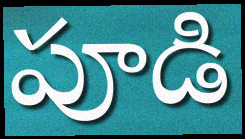
పూడి